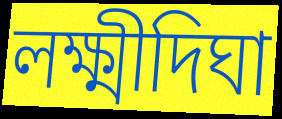
লক্ষ্মীদিঘা